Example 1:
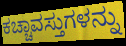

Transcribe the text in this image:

ಕಚ್ಚಾವಸ್ತುಗಳನ್ನು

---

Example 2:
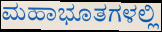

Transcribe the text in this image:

ಮಹಾಭೂತಗಳಲ್ಲಿ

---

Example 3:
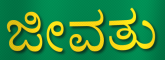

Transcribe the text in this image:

ಜೀವತು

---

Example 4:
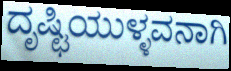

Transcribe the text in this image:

ದೃಷ್ಟಿಯುಳ್ಳವನಾಗಿ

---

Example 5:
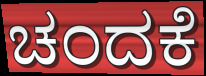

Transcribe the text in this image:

ಚಂದಕೆ